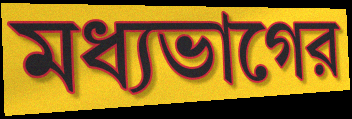
মধ্যভাগের